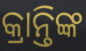
କ୍ରାନ୍ତିଙ୍କ